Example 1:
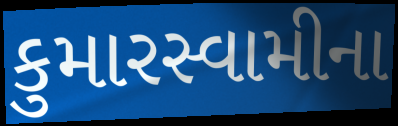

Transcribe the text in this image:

કુમારસ્વામીના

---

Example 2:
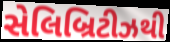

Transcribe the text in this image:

સેલિબ્રિટીઝથી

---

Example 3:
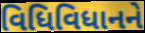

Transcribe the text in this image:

વિધિવિધાનને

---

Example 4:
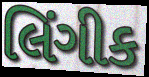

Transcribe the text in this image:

લિંગીક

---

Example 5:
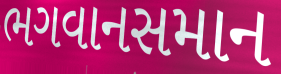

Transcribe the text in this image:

ભગવાનસમાન